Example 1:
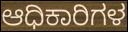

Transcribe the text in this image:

ಆಧಿಕಾರಿಗಳ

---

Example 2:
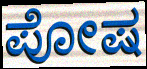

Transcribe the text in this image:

ಪೋಷ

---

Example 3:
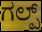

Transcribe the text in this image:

ಗಲ್ಪ್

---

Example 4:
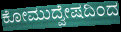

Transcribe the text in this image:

ಕೋಮುದ್ವೇಷದಿಂದ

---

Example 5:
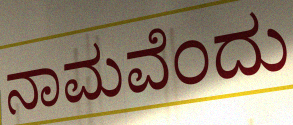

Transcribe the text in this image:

ನಾಮವೆಂದು